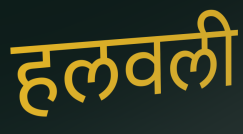
हलवली